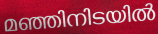
മഞ്ഞിനിടയിൽ